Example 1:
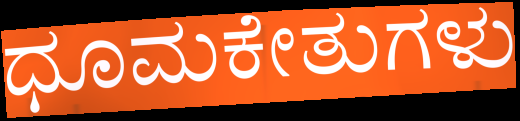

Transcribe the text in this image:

ಧೂಮಕೇತುಗಳು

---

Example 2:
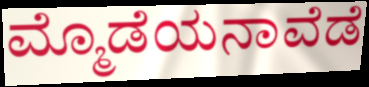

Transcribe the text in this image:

ಮ್ಮೊಡೆಯನಾವೆಡೆ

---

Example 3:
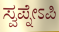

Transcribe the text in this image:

ಸ್ವಪ್ನೇಽಪಿ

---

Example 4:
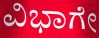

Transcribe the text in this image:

ವಿಭಾಗೇ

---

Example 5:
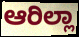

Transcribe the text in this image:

ಆರಿಲ್ಲಾ